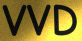
VVD